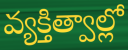
వ్యక్తిత్వాల్లో